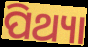
ପିଥ୍ୟା